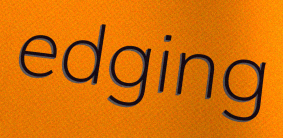
edging